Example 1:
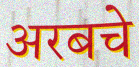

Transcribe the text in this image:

अरबचे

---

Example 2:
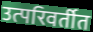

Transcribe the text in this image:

उत्परिवर्तीत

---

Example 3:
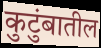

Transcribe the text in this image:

कुटुंबातील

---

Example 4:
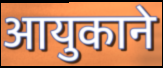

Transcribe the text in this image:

आयुकाने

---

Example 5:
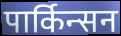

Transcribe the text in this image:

पार्किन्सन